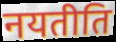
नयतीति